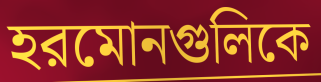
হরমোনগুলিকে